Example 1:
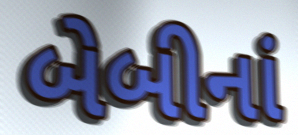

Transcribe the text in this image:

બેબીનાં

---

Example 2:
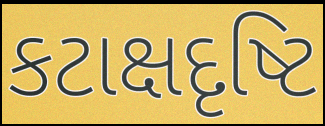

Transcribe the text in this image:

કટાક્ષદૃષ્ટિ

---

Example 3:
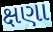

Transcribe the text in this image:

ક્ષણા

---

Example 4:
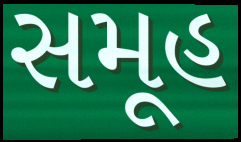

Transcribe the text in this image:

સમૂહ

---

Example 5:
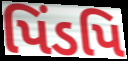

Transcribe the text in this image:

પિંડપિ